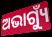
ଅଭାଗ୍ୟୁଁ